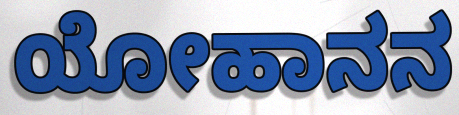
ಯೋಹಾನನ